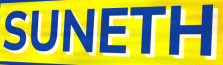
SUNETH